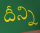
దీన్ని